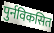
पुर्नविकसित